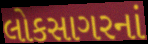
લોકસાગરનાં